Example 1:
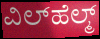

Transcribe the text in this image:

ವಿಲ್‌ಹೆಲ್ಮ್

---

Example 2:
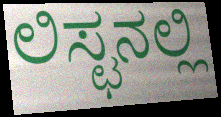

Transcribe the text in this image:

ಲಿಸ್ಟನಲ್ಲಿ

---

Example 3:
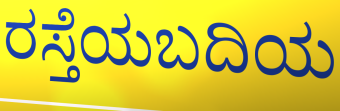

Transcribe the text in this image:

ರಸ್ತೆಯಬದಿಯ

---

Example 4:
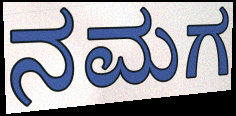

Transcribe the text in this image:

ನಮಗ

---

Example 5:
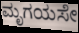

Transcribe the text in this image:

ಮೃಗಯಸೇ